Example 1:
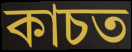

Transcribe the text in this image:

কাচত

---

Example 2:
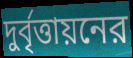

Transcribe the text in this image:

দুর্বৃত্তায়নের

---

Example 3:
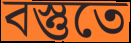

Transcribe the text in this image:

বস্তুতে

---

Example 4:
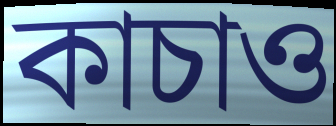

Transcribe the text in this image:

কাচাও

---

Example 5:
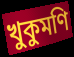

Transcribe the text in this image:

খুকুমণি